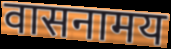
वासनामय